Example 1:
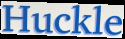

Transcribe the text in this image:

Huckle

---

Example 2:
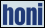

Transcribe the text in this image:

honi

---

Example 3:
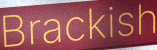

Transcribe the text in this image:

Brackish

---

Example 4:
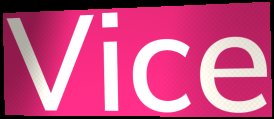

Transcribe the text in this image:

Vice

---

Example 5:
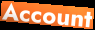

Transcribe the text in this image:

Account